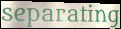
separating